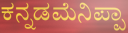
ಕನ್ನಡಮೆನಿಪ್ಪಾ